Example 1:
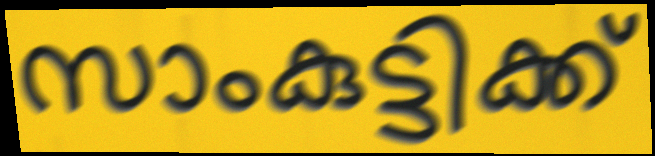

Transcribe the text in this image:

സാംകുട്ടിക്ക്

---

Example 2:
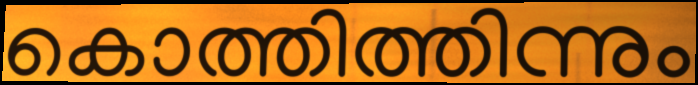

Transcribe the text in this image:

കൊത്തിത്തിന്നും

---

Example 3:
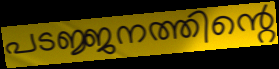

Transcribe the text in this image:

പടജ്ജനത്തിന്റെ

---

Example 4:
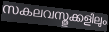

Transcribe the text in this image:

സകലവസ്തുക്കളിലും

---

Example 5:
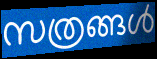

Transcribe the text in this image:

സത്രങ്ങൾ